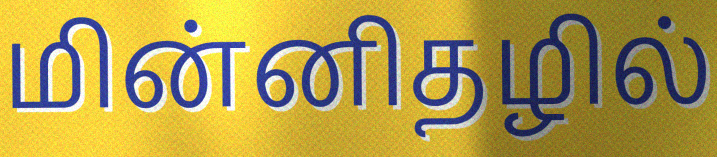
மின்னிதழில்